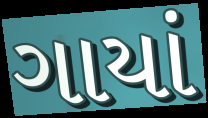
ગાયાં